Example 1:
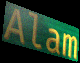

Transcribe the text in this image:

Alam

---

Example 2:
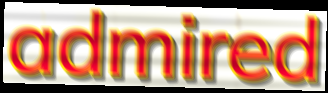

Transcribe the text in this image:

admired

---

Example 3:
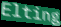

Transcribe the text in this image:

Elting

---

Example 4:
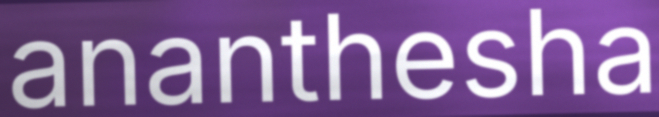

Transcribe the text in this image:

ananthesha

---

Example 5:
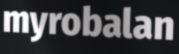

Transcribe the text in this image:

myrobalan